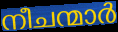
നീചന്മാർ